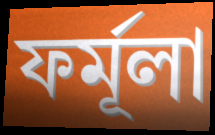
ফৰ্মূলা